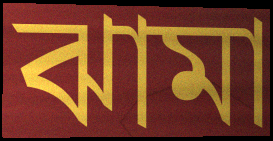
ঝামা